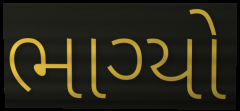
ભાગ્યો